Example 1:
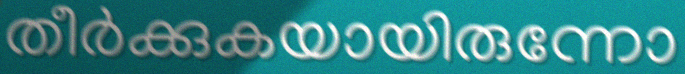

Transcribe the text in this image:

തീർക്കുകയായിരുന്നോ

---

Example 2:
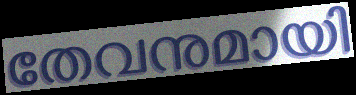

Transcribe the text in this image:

തേവനുമായി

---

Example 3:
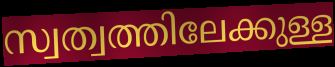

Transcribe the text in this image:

സ്വത്വത്തിലേക്കുള്ള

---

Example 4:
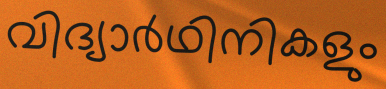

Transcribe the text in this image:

വിദ്യാർഥിനികളും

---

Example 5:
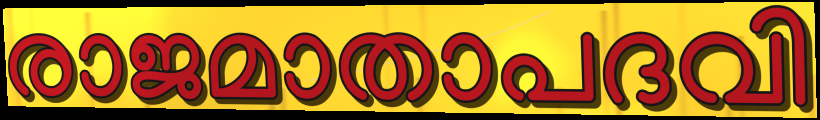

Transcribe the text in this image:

രാജമാതാപദവി